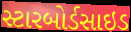
સ્ટારબોર્ડસાઇડ